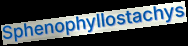
Sphenophyllostachys